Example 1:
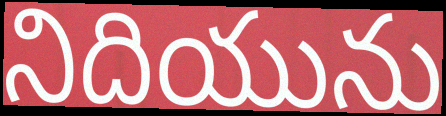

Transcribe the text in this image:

నిదియును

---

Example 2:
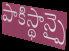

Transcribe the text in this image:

పాకిస్థాన్పై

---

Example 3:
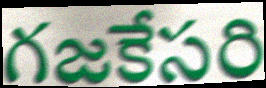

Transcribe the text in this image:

గజకేసరి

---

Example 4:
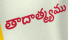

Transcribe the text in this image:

తాదాత్మ్యము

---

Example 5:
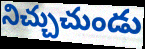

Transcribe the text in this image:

నిచ్చుచుండు